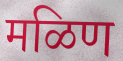
मळिण